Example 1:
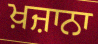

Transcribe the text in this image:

ਖ਼ਜ਼ਾਨਾ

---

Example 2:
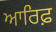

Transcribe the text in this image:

ਆਰਿਫ਼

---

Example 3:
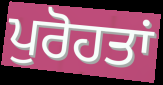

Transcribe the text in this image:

ਪੁਰੋਹਤਾਂ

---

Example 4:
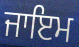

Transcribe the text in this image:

ਜਾਇਮ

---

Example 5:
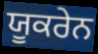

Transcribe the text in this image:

ਯੂਕਰੇਨ